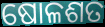
ଷୋଳଶତ